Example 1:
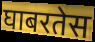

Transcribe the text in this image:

घाबरतेस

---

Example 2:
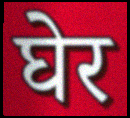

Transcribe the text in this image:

घेर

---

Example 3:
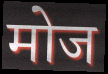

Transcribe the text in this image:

मोज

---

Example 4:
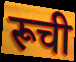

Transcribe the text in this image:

रूची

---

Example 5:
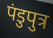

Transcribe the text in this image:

पंडुपुत्र